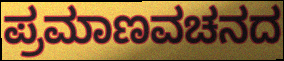
ಪ್ರಮಾಣವಚನದ